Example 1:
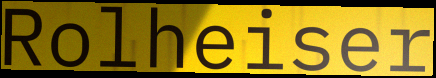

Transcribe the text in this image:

Rolheiser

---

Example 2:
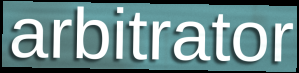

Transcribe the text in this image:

arbitrator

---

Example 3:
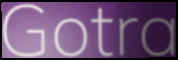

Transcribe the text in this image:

Gotra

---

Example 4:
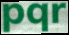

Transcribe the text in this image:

pqr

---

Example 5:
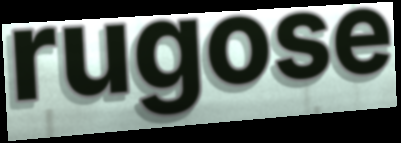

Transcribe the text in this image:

rugose